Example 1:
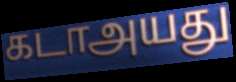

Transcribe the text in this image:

கடாஅயது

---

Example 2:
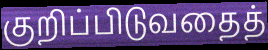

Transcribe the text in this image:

குறிப்பிடுவதைத்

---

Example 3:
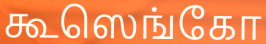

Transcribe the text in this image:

கூஸெங்கோ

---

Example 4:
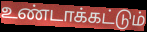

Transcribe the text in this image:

உண்டாக்கட்டும்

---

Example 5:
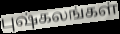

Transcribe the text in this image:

புஷ்கலங்கள்